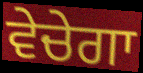
ਵੇਚੇਗਾ